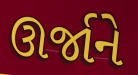
ઊર્જાને